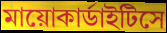
মায়োকার্ডাইটিসে